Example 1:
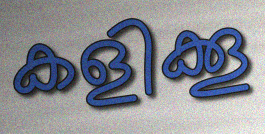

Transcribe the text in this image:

കളിക്കൂ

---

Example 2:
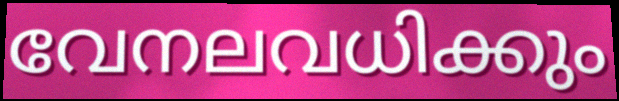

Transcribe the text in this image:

വേനലവധിക്കും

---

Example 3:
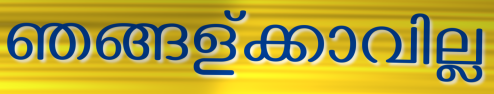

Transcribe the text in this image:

ഞങ്ങള്ക്കാവില്ല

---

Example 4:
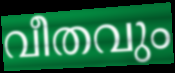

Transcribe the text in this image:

വീതവും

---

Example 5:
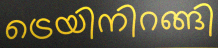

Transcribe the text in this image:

ട്രെയിനിറങ്ങി